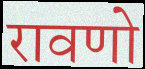
रावणो